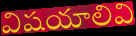
విషయాలివి